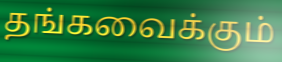
தங்கவைக்கும்